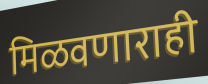
मिळवणाराही